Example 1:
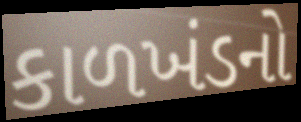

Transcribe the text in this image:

કાળખંડનો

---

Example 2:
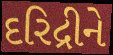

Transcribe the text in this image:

દરિદ્રીને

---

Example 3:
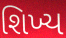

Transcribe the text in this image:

શિખ્ય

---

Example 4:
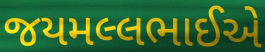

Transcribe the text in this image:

જયમલ્લભાઈએ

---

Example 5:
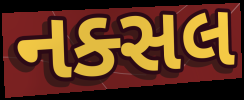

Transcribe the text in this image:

નક્સલ